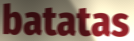
batatas